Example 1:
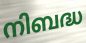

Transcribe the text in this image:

നിബദ്ധ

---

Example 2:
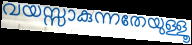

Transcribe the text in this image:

വയസ്സാകുന്നതേയുള്ളൂ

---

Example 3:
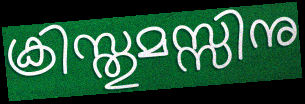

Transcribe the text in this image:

ക്രിസ്തുമസ്സിനു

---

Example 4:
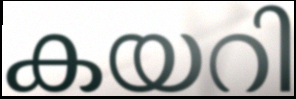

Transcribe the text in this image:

കയറി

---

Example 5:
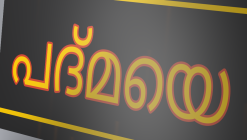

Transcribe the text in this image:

പദ്മയെ